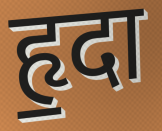
हृ॒दा